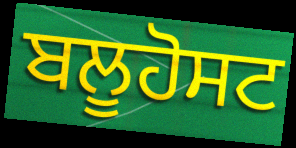
ਬਲੂਹੋਸਟ